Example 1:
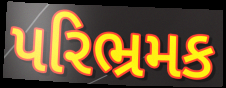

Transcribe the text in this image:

પરિભ્રમક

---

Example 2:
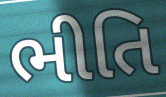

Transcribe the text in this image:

ભીતિ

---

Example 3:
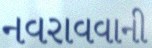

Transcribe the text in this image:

નવરાવવાની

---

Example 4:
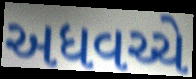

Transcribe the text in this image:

અધવચ્ચે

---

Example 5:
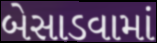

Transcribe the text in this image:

બેસાડવામાં